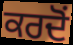
ਕਰਦੋਂ